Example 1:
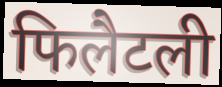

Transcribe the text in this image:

फिलैटली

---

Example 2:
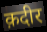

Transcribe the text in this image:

क़दीर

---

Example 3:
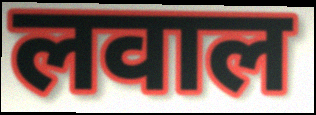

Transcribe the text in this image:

लवाल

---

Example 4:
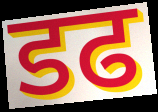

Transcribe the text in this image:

डढ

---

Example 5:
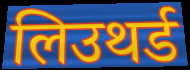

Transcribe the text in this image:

लिउथर्ड